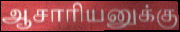
ஆசாரியனுக்கு